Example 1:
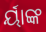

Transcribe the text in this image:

ର୍ୟାଙ୍କ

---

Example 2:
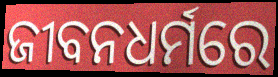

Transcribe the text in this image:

ଜୀବନଧର୍ମରେ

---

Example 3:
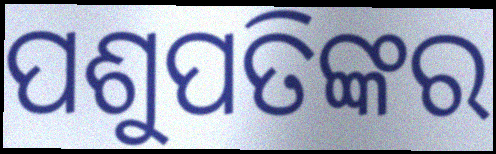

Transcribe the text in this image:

ପଶୁପତିଙ୍କର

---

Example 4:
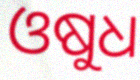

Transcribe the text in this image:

ଓଷୁଧ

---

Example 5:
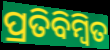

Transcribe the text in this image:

ପ୍ରତିବିମ୍ବିତ